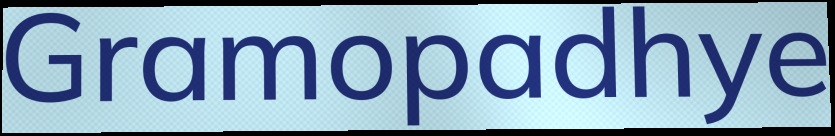
Gramopadhye